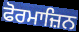
ਫੋਰਮਾਜ਼ਿਨ